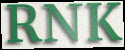
RNK